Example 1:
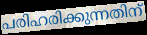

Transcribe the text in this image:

പരിഹരിക്കുന്നതിന്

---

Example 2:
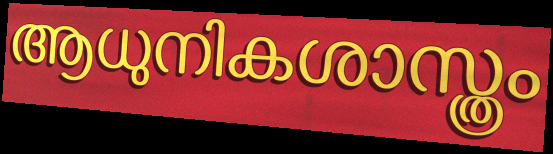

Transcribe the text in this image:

ആധുനികശാസ്ത്രം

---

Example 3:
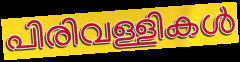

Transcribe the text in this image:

പിരിവള്ളികൾ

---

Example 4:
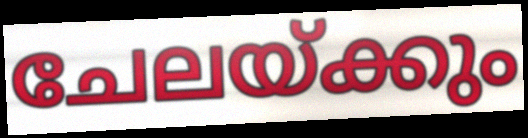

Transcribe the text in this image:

ചേലയ്ക്കും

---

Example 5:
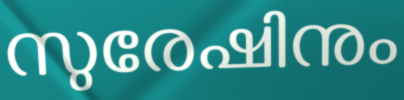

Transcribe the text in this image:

സുരേഷിനും